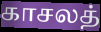
காசலத்